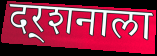
दर्शनाला